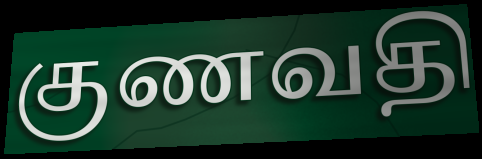
குணவதி